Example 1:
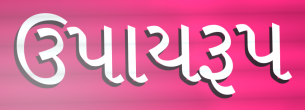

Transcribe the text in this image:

ઉપાયરૂપ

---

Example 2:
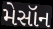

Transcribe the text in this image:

મેસૉન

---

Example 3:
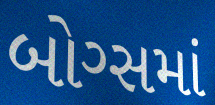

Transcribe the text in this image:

બોગ્સમાં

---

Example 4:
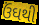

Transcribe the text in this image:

ઉંઘથી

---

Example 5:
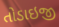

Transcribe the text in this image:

તોડાઇજી